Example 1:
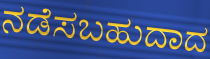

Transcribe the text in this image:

ನಡೆಸಬಹುದಾದ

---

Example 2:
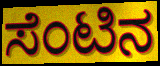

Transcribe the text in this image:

ಸೆಂಟಿನ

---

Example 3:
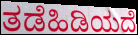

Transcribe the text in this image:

ತಡೆಹಿಡಿಯದೆ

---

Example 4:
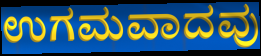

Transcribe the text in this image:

ಉಗಮವಾದವು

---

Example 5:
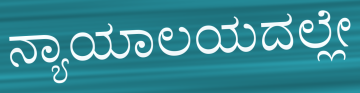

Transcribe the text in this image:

ನ್ಯಾಯಾಲಯದಲ್ಲೇ